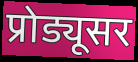
प्रोड्यूसर